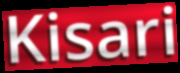
Kisari